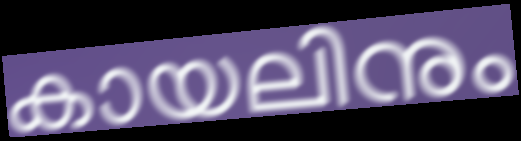
കായലിനും